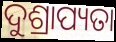
ଦୁଶ୍ରାପ୍ୟତା